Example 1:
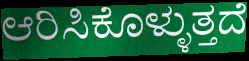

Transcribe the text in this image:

ಆರಿಸಿಕೊಳ್ಳುತ್ತದೆ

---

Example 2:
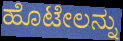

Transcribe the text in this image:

ಹೊಟೇಲನ್ನು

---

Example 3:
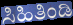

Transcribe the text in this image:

ಸಿಹಿತಿಂಡಿ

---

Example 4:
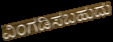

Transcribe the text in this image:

ವಿಂಗಡಿಸಬಹುದು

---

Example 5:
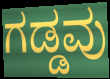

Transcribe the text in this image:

ಗಡ್ಡವು